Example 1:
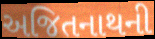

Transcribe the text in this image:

અજિતનાથની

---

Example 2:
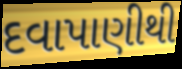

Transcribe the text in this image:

દવાપાણીથી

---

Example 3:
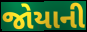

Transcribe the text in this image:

જોયાની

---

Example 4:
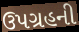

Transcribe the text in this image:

ઉપગ્રહની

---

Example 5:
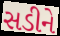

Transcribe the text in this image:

સડીને